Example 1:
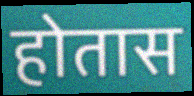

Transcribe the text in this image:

होतास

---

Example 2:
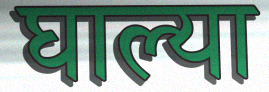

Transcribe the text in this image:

घाल्या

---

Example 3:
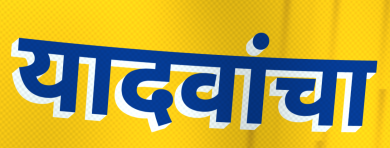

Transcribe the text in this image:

यादवांचा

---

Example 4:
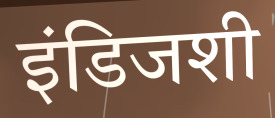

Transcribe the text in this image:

इंडिजशी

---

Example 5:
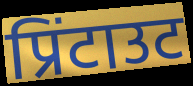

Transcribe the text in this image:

प्रिंटाउट